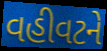
વહીવટને